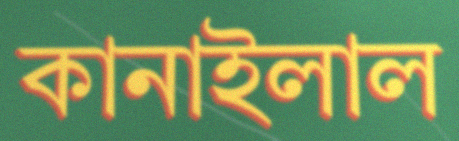
কানাইলাল